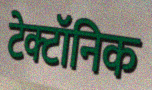
टेक्टॉनिक